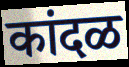
कांदळ